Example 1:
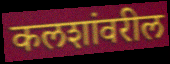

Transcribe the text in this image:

कलशांवरील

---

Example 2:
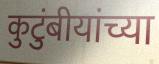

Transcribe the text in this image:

कुटुंबीयांच्या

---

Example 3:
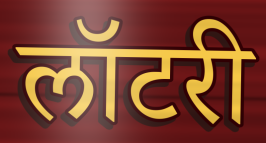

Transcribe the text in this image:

लॉटरी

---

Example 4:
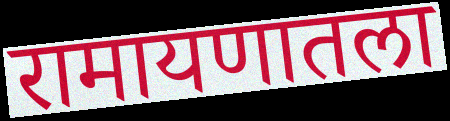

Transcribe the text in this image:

रामायणातला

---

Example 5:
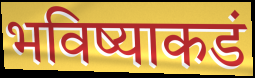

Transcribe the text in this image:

भविष्याकडं